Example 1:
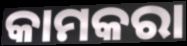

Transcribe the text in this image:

କାମକରା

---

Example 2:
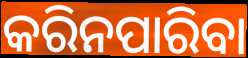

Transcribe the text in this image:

କରିନପାରିବା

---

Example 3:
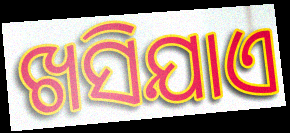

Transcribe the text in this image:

ଖସିଯାଏ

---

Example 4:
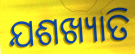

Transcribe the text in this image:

ଯଶଖ୍ୟାତି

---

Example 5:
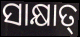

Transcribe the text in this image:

ସାକ୍ଷାତ୍